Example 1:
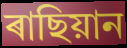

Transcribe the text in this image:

ৰাছিয়ান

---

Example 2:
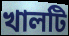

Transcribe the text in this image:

খালটি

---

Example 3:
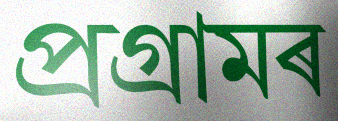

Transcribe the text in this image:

প্ৰগ্ৰামৰ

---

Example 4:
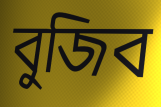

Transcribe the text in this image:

বুজিব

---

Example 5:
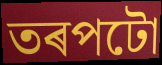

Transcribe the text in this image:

তৰপটো